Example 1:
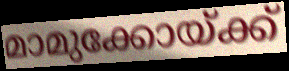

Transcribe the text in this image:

മാമുക്കോയ്ക്ക്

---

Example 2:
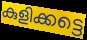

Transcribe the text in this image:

കുളിക്കട്ടെ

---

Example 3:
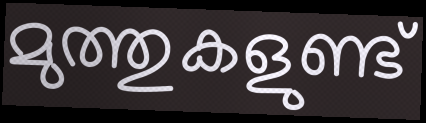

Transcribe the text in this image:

മുത്തുകളുണ്ട്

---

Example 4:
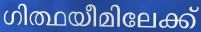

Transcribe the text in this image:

ഗിത്ഥയീമിലേക്ക്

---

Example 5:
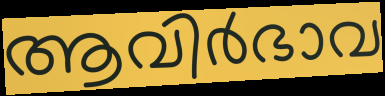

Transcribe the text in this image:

ആവിർഭാവ